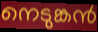
നെടുങ്കൻ